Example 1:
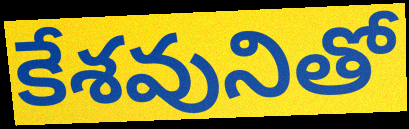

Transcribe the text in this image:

కేశవునితో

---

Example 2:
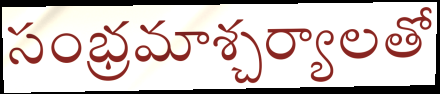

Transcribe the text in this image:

సంభ్రమాశ్చర్యాలతో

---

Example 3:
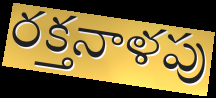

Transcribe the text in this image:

రక్తనాళపు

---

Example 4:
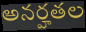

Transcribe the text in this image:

అనర్హతల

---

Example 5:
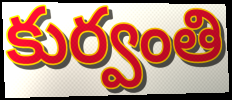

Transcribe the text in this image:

కుర్వంతి